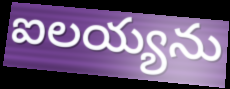
ఐలయ్యను